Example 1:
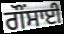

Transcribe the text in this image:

ਗੌਂਸਾਈ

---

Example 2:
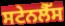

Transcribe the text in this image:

ਸਟੇਨਲੈੱਸ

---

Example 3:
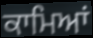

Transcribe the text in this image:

ਕਾਮਿਆਂ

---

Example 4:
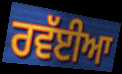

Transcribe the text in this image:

ਰਵੱਈਆ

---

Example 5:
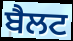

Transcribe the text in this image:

ਬੈਲਟ